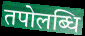
तपोलब्धि